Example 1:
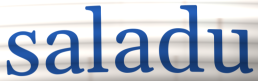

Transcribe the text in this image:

saladu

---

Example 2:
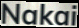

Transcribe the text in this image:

Nakai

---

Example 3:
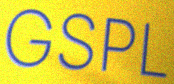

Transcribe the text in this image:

GSPL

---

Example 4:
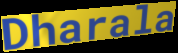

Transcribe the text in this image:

Dharala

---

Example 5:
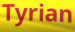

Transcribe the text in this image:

Tyrian